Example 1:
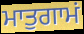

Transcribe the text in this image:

ਮਾਤੁਗਾਮਂ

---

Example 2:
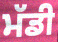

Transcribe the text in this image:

ਮੱਡੀ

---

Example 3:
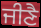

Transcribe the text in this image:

ਜੀਣੈ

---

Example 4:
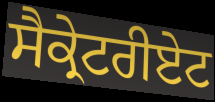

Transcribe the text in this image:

ਸੈਕ੍ਰੇਟਰੀਏਟ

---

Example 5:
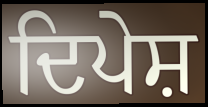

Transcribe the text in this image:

ਦਿਪੇਸ਼